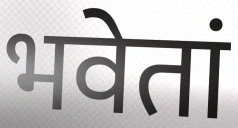
भवेतां